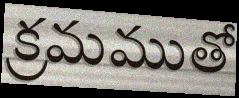
క్రమముతో